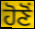
ਹੋਣੋਂ